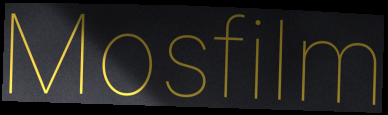
Mosfilm